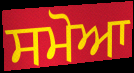
ਸਮੋਆ